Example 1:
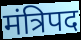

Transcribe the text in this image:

मंत्रिपद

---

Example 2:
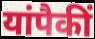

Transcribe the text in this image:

यांपैकीं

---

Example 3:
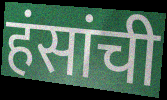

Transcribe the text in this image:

हंसांची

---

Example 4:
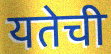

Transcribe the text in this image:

यतेची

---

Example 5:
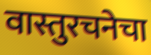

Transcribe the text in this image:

वास्तुरचनेचा